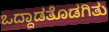
ಒದ್ದಾಡತೊಡಗಿತು